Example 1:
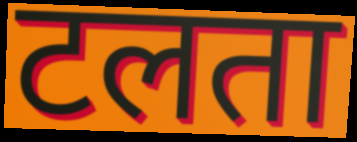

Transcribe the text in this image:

टलता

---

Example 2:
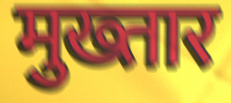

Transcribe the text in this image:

मुख्‍तार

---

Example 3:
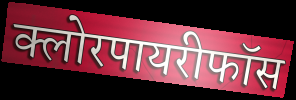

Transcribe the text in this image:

क्लोरपायरीफॉस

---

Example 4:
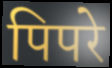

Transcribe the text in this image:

पिपरे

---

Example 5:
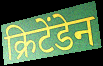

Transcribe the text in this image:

क्रिटेंडेन